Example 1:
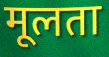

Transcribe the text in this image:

मूलता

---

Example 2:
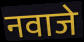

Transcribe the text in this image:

नवाजे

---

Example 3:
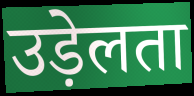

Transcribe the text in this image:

उड़ेलता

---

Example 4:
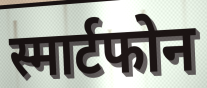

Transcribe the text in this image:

स्मार्टफोन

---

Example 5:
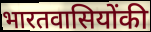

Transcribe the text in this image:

भारतवासियोंकी